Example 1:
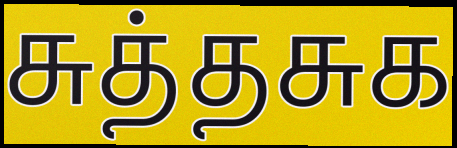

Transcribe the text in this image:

சுத்தசுக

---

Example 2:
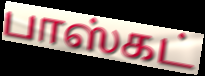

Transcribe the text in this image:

பாஸ்கட்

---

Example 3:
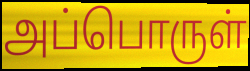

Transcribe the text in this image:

அப்பொருள்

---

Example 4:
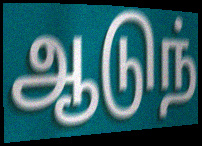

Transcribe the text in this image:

ஆடுந்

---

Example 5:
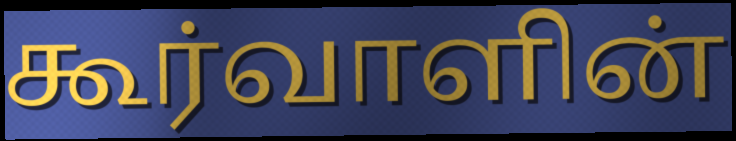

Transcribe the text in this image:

கூர்வாளின்